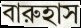
বারুহাস